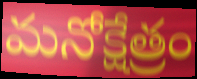
మనోక్షేత్రం